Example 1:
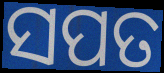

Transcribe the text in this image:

ସପତ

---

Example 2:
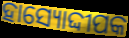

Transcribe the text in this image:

ହାସ୍ୟୋଦ୍ଦୀପକ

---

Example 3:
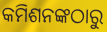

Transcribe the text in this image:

କମିଶନଙ୍କଠାରୁ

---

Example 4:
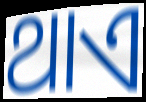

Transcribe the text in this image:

ଥାଏ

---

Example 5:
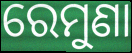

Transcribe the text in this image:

ରେମୁଣା